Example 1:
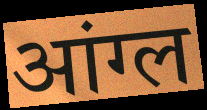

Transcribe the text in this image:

आंग्ल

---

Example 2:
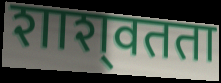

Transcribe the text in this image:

शाश्वतता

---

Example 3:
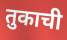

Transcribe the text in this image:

तुकाची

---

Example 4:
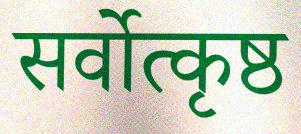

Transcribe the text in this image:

सर्वोत्कृष्ठ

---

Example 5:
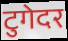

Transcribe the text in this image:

टुगेदर